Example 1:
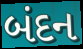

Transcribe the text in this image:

બંદન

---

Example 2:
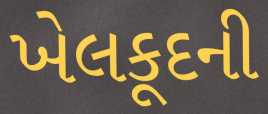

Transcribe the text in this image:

ખેલકૂદની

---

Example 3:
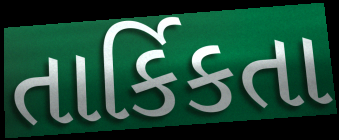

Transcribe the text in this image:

તાર્કિકતા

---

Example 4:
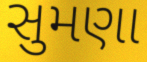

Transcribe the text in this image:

સુમણા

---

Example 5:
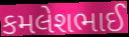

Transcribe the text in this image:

કમલેશભાઈ